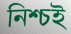
নিশ্চই